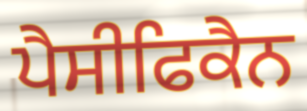
ਪੈਸੀਫਿਕੈਨ